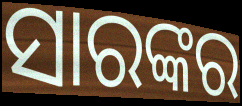
ସାରଙ୍କର